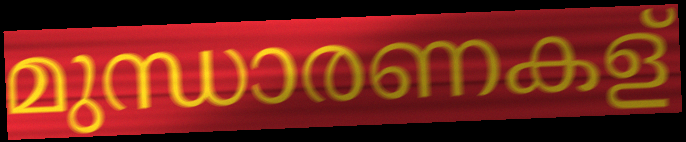
മുന്ധാരണകള്